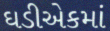
ઘડીએકમાં